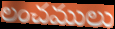
లంచములు